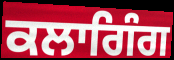
ਕਲਾਗਿੰਗ